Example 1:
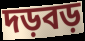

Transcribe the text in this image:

দড়বড়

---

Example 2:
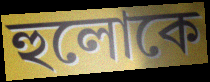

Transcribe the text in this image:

হুলোকে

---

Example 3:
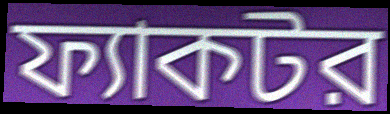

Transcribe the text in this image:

ফ্যাকটর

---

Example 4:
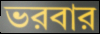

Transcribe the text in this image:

ভরবার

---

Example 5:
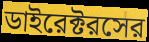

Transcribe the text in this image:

ডাইরেক্টরসের